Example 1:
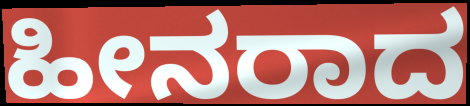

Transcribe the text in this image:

ಹೀನರಾದ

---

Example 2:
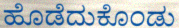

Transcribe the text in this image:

ಹೊಡೆದುಕೊಂಡು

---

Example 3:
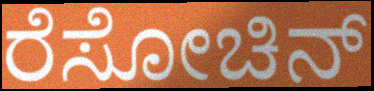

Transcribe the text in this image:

ರೆಸೋಚಿನ್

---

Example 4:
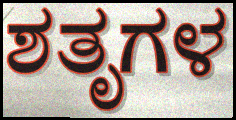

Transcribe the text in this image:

ಶತೃಗಳ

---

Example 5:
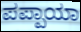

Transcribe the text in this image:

ಪಪ್ಪಾಯಾ